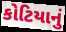
કોટિયાનું